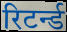
रिटर्न्ड